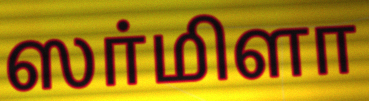
ஸர்மிளா